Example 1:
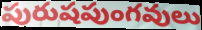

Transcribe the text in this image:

పురుషపుంగవులు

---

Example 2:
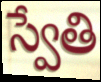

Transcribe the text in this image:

స్వేతి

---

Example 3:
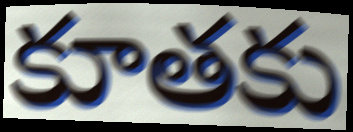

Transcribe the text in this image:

కూతకు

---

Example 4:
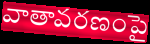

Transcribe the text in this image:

వాతావరణంపై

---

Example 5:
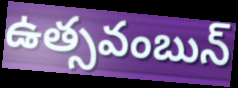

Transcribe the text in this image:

ఉత్సవంబున్